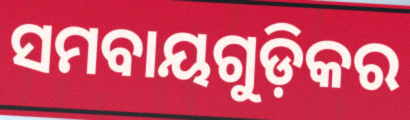
ସମବାୟଗୁଡ଼ିକର